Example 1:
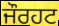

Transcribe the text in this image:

ਜੌਰਹਟ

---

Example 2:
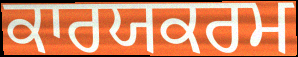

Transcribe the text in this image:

ਕਾਰਯਕਰਮ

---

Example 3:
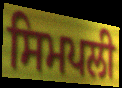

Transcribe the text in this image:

ਸਿਮਪਲੀ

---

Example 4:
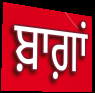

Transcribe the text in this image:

ਬ਼ਾਗ਼ਾਂ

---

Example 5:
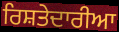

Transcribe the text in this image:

ਰਿਸ਼ਤੇਦਾਰੀਆ